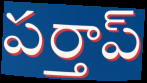
పర్తాప్